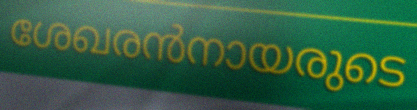
ശേഖരൻനായരുടെ